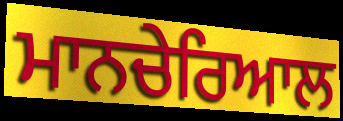
ਮਾਨਚੇਰਿਆਲ